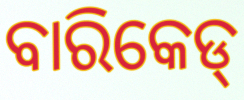
ବାରିକେଡ୍